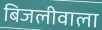
बिजलीवाला